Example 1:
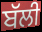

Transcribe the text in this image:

ਬੱਲੀ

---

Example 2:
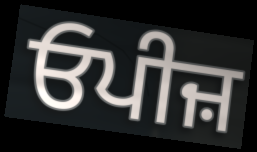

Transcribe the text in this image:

ਓਪੀਜ਼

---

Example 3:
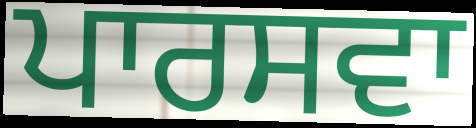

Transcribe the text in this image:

ਪਾਰਸਵਾ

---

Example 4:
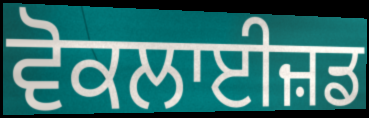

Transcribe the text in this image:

ਵੋਕਲਾਈਜ਼ਡ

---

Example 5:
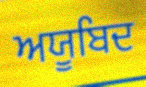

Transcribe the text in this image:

ਅਯੂਬਿਦ